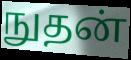
நுதன்